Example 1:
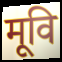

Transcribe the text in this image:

मूवि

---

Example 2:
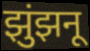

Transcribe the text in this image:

झुंझनू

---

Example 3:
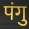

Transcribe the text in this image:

पंगु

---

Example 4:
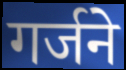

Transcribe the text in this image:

गर्जने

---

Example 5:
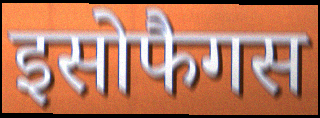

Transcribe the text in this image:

इसोफैगस